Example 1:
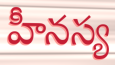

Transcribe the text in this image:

హీనస్య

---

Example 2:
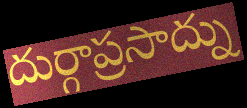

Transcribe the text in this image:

దుర్గాప్రసాద్ను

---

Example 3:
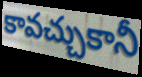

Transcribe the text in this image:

కావచ్చుకానీ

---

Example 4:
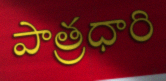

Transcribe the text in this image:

పాత్రధారి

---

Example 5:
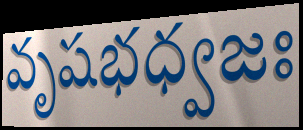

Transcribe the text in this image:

వృషభధ్వజః